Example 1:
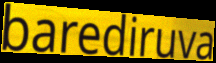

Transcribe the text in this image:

barediruva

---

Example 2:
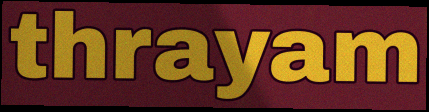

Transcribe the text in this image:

thrayam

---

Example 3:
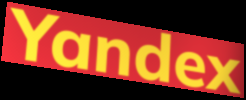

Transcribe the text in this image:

Yandex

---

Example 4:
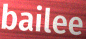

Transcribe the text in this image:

bailee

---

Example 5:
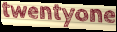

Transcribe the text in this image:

twentyone